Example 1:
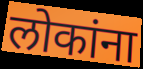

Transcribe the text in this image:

लोकांना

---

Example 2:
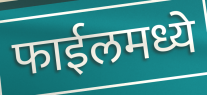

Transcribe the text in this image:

फाईलमध्ये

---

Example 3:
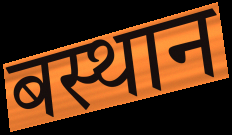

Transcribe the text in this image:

बस्थान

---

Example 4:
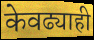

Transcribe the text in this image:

केवढ्याही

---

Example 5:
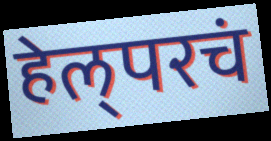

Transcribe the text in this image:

हेल्परचं